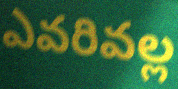
ఎవరివల్ల